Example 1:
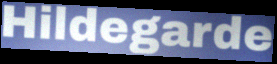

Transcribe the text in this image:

Hildegarde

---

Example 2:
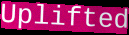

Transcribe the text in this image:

Uplifted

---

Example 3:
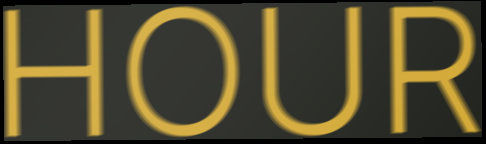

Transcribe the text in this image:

HOUR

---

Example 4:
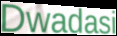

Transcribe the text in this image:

Dwadasi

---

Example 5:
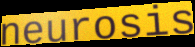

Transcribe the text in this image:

neurosis